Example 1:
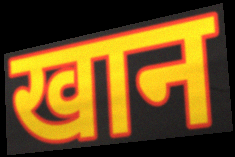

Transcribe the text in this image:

खान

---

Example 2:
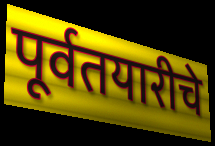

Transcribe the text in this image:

पूर्वतयारीचे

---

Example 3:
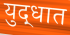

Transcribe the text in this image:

युद्धात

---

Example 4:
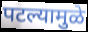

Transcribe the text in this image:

पटल्यामुळे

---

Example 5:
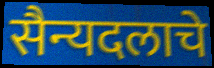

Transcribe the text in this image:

सैन्यदलाचे